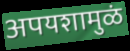
अपयशामुळं